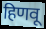
हिणवू